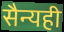
सैन्यही